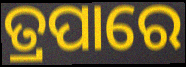
ତ୍ରପାରେ